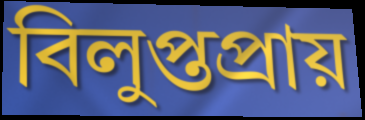
বিলুপ্তপ্রায়